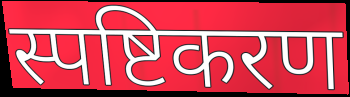
स्पष्टिकरण